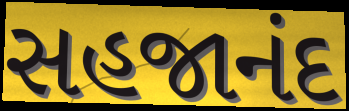
સહજાનંદ